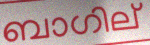
ബാഗില്